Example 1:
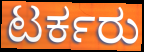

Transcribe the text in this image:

ಟರ್ಕರು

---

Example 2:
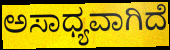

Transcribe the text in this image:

ಅಸಾಧ್ಯವಾಗಿದೆ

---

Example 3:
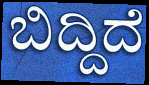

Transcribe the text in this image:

ಬಿದ್ದಿದೆ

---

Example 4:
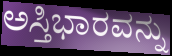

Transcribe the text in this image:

ಅಸ್ತಿಭಾರವನ್ನು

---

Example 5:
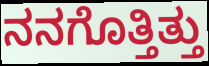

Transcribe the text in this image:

ನನಗೊತ್ತಿತ್ತು